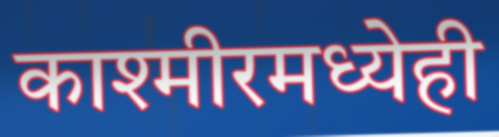
काश्‍मीरमध्येही